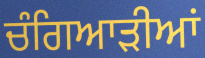
ਚੰਗਿਆੜੀਆਂ